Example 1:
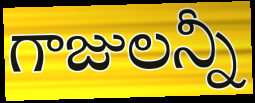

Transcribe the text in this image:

గాజులన్నీ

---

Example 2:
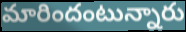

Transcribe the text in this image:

మారిందంటున్నారు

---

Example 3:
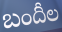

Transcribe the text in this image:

బందీల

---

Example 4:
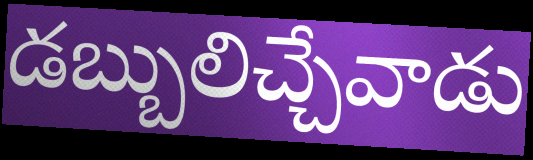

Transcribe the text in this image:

డబ్బులిచ్చేవాడు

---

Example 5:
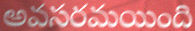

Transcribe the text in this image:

అవసరమయింది